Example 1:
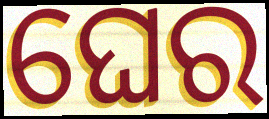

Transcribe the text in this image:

ଘେର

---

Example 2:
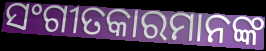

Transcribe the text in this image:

ସଂଗୀତକାରମାନଙ୍କ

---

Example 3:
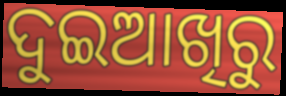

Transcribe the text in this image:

ଦୁଇଆଖିରୁ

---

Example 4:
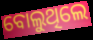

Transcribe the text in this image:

ବୋଲୁଥିଲେ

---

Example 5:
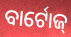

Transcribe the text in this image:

ବାର୍ଟୋଜ୍